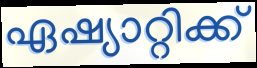
ഏഷ്യാറ്റിക്ക്